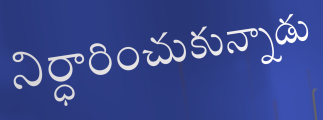
నిర్ధారించుకున్నాడు